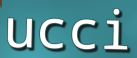
ucci